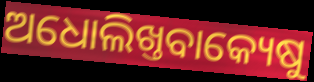
ଅଧୋଲିଖ୍ତବାକ୍ୟେଷୁ